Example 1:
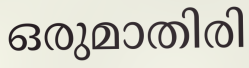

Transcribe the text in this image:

ഒരുമാതിരി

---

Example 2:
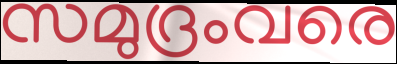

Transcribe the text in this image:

സമുദ്രംവരെ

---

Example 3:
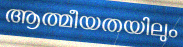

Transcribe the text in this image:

ആത്മീയതയിലും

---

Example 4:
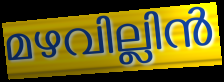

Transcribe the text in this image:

മഴവില്ലിൻ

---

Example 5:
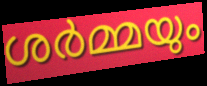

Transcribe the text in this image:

ശർമ്മയും